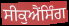
ਸੀਕੁਐਂਸਿੰਗ